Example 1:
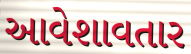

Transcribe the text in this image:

આવેશાવતાર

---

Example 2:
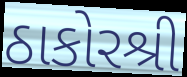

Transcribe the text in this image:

ઠાકોરશ્રી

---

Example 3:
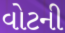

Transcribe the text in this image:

વોટની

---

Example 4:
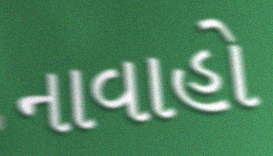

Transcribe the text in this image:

નાવાહો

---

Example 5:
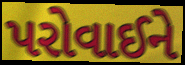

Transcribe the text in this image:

પરોવાઈને